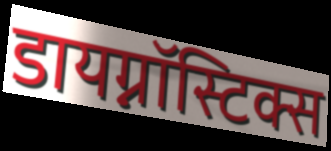
डायग्नॉस्टिक्स